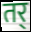
तर्